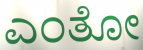
ಎಂತೋ